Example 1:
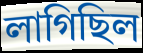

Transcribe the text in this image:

লাগিছিল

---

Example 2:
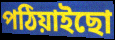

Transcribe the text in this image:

পঠিয়াইছো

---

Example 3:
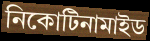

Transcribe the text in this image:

নিকোটিনামাইড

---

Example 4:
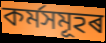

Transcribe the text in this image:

কৰ্মসমূহৰ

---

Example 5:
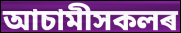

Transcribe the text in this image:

আচামীসকলৰ